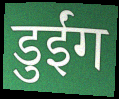
डुईंग